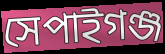
সেপাইগঞ্জ